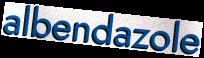
albendazole